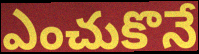
ఎంచుకొనే